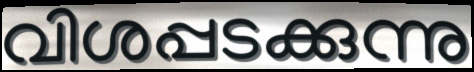
വിശപ്പടക്കുന്നു